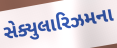
સેક્યુલારિઝમના